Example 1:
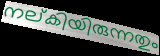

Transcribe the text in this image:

നല്കിയിരുന്നതും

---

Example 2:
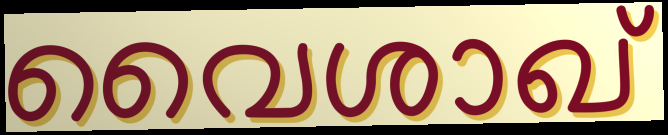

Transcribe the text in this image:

വൈശാഖ്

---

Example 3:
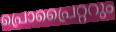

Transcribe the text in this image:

പ്രൊപ്രൈറ്ററും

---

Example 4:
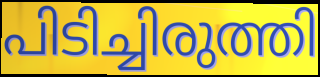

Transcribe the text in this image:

പിടിച്ചിരുത്തി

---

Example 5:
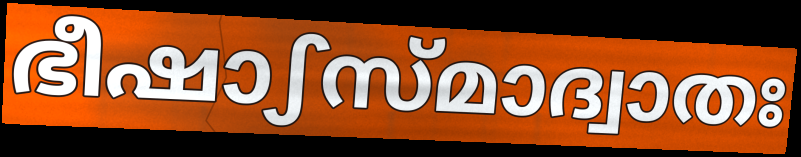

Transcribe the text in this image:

ഭീഷാഽസ്മാദ്വാതഃ